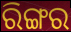
ରିଙ୍ଗର